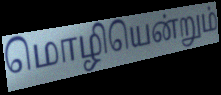
மொழியென்றும்